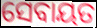
ସେବାୟତ